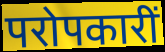
परोपकारीं